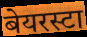
बेयरस्टा